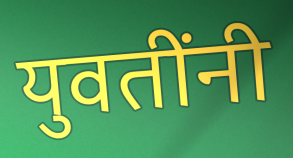
युवतींनी